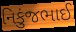
નિકુંજભાઈ